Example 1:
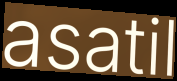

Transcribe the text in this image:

asatil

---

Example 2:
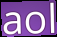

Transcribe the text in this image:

aol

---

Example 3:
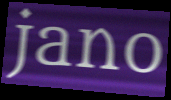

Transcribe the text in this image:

jano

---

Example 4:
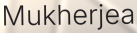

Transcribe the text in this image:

Mukherjea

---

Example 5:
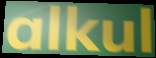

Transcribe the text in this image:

alkul